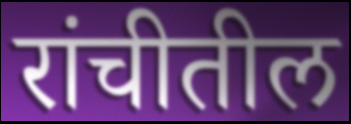
रांचीतील